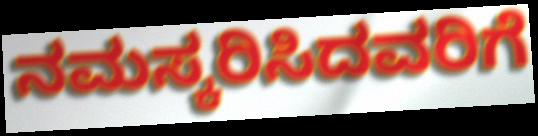
ನಮಸ್ಕರಿಸಿದವರಿಗೆ